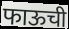
फाऊची